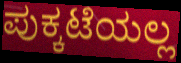
ಪುಕ್ಕಟೆಯಲ್ಲ